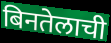
बिनतेलाची